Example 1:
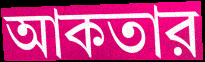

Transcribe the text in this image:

আকতার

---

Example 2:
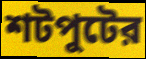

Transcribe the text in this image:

শটপুটের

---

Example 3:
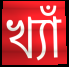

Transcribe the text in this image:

খ্যাঁ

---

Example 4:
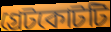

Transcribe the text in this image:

গ্রেটকোটটি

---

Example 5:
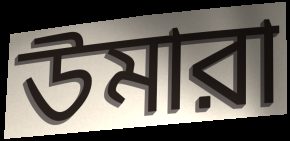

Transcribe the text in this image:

উমারা